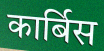
कार्बिस